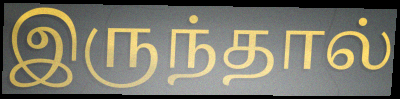
இருந்தால்